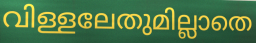
വിള്ളലേതുമില്ലാതെ